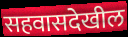
सहवासदेखील